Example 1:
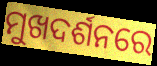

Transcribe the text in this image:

ମୁଖଦର୍ଶନରେ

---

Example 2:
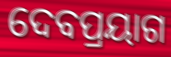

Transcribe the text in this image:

ଦେବପ୍ରୟାଗ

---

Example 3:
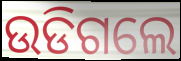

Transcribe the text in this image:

ଉଡିଗଲେ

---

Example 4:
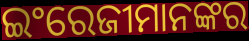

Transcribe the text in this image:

ଇଂରେଜୀମାନଙ୍କର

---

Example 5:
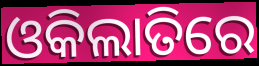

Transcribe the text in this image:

ଓକିଲାତିରେ